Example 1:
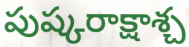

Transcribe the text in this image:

పుష్కరాక్షాశ్చ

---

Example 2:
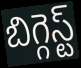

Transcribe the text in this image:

బిగ్గెస్ట్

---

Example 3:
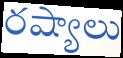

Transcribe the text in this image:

రష్యాలు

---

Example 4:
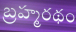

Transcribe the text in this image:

బ్రహ్మరథం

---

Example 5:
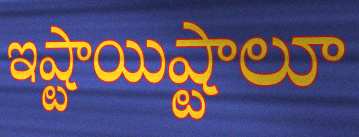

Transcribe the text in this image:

ఇష్టాయిష్టాలూ